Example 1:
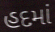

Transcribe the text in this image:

હદમાં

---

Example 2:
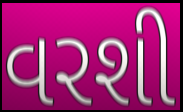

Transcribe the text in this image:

વરશી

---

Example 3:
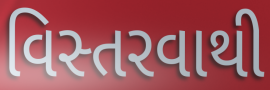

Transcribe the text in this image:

વિસ્તરવાથી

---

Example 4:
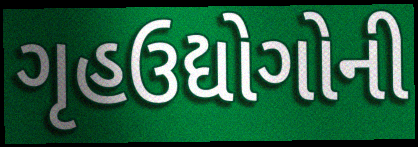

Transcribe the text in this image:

ગૃહઉદ્યોગોની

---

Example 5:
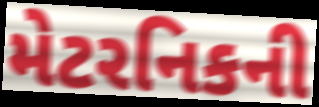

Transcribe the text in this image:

મેટરનિકની